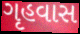
ગૃહવાસ